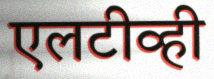
एलटीव्ही